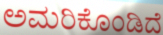
ಅಮರಿಕೊಂಡಿದೆ